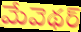
మేవెథర్